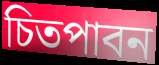
চিতপাবন